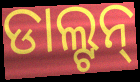
ଡାଲ୍ଟନ୍